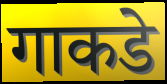
गाकडे